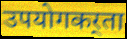
उपयोगकर्ता